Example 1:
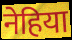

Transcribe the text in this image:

नेहिया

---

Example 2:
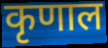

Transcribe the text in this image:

कृणाल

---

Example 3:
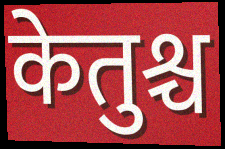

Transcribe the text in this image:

केतुश्च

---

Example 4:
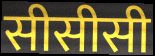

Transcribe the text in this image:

सीसीसी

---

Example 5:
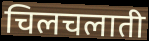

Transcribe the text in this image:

चिलचलाती